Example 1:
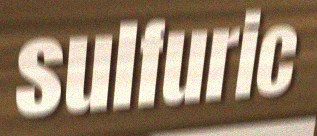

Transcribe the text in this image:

sulfuric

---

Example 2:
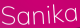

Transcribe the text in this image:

Sanika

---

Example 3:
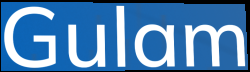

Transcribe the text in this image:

Gulam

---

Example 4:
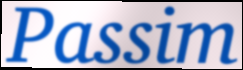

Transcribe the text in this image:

Passim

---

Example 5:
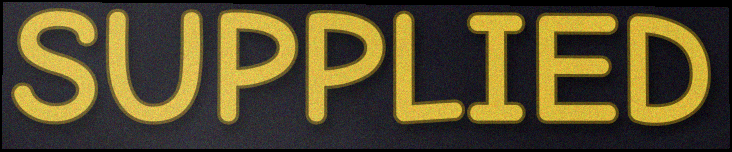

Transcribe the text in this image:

SUPPLIED